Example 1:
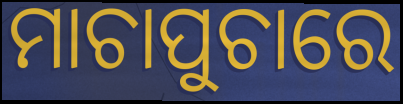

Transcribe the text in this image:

ମାଚାପୁଚାରେ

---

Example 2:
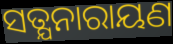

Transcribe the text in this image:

ସତ୍ଯନାରାୟଣ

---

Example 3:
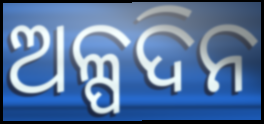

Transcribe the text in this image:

ଅଳ୍ପଦିନ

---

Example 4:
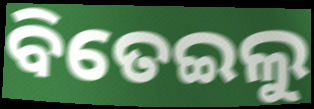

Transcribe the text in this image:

ବିତେଇଲୁ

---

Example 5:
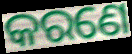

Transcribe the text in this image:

କରଣେ